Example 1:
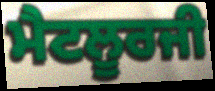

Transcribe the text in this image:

ਮੈਟਲੂਰਜੀ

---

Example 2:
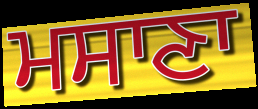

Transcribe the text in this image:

ਮਸਾਣਾ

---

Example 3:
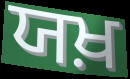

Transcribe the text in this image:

ਯਖ਼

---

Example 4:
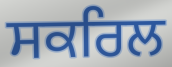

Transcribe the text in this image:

ਸਕਰਿਲ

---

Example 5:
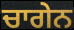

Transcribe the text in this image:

ਚਾਗੇਨ